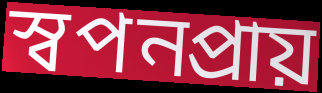
স্বপনপ্রায়